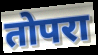
तोपरा